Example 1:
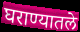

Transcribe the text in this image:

घराण्यातले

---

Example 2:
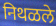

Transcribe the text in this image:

निथळले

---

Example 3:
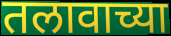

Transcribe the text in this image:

तलावाच्या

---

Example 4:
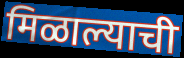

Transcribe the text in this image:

मिळाल्याची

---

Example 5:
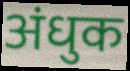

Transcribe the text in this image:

अंधुक